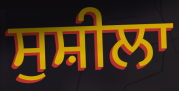
ਸੁਸ਼ੀਲਾ